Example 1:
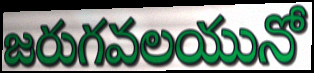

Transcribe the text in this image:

జరుగవలయునో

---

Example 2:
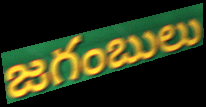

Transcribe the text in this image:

జగంబులు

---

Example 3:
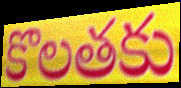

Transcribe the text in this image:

కొలతకు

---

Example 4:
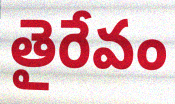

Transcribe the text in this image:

తైరేవం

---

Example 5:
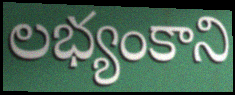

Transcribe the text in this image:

లభ్యంకాని